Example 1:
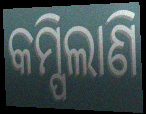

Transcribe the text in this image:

କମ୍ପିଲାଣି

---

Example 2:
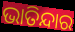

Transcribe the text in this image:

ଭାତିନ୍ଦାର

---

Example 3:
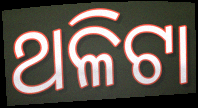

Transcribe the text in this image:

ଥଳିଟା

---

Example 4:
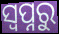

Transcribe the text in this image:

ସ୍ବପ୍ନରୁ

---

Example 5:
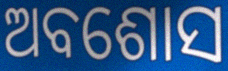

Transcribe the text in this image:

ଅବଶୋସ